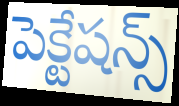
పెక్టేషన్స్